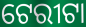
ଟେରୀଟା